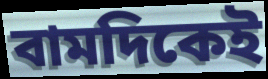
বামদিকেই